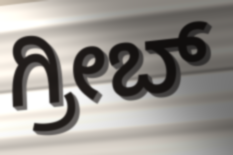
ಗ್ರೀಬ್